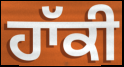
ਹਾੱਕੀ